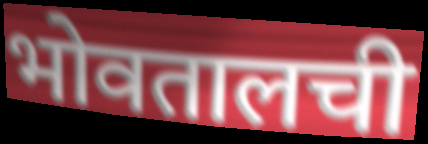
भोवतालची